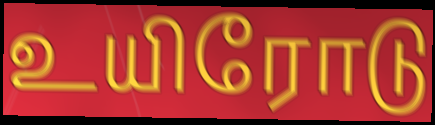
உயிரோடு